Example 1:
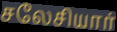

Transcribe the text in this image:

சலேசியார்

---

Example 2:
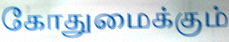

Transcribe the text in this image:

கோதுமைக்கும்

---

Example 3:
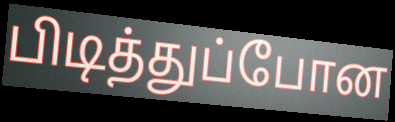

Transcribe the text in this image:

பிடித்துப்போன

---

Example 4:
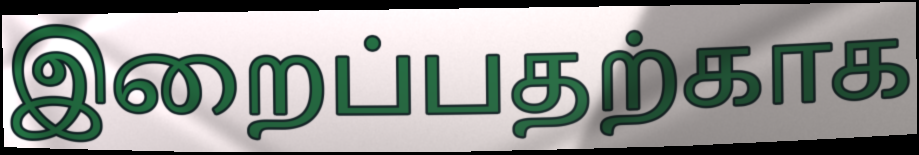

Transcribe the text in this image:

இறைப்பதற்காக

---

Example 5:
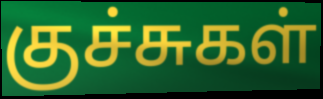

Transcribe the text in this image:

குச்சுகள்